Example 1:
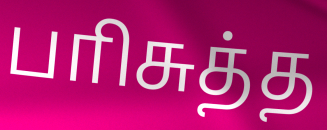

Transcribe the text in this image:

பரிசுத்த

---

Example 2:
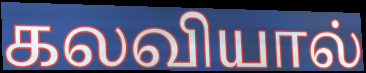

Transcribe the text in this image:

கலவியால்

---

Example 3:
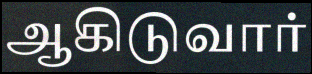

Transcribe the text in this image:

ஆகிடுவார்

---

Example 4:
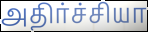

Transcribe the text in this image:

அதிர்ச்சியா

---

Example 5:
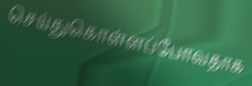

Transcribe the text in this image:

செய்துகொள்ளப்போவதாக